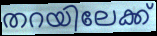
തറയിലേക്ക്